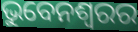
ଭୁବେନଶ୍ବରର